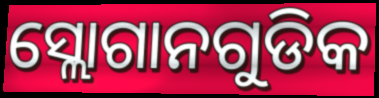
ସ୍ଲୋଗାନଗୁଡିକ